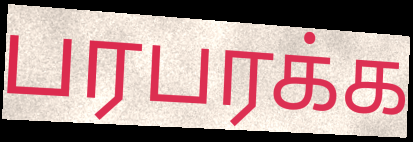
பரபரக்க